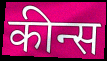
कीन्स